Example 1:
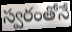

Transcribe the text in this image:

స్వరంతోనే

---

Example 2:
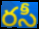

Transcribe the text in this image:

రసీ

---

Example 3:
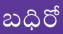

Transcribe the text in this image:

బధిరో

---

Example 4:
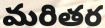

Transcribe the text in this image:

మరితర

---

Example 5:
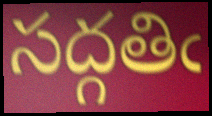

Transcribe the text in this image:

సద్గతిఁ